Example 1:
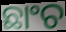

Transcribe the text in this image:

ଛାଂଚ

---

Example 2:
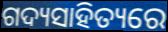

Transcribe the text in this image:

ଗଦ୍ୟସାହିତ୍ୟରେ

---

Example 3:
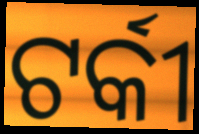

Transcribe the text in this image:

ଟର୍କୀ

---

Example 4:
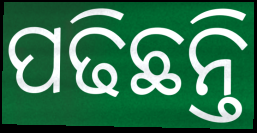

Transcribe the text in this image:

ପଢିଛନ୍ତି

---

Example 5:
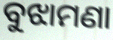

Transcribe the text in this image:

ବୁଝାମଣା